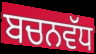
ਬਚਨਵੱਧ